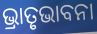
ଭ୍ରାତୃଭାବନା